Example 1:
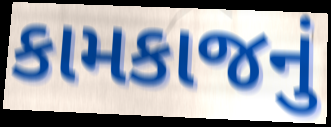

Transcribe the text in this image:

કામકાજનું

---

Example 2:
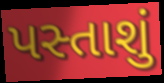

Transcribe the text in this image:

પસ્તાશું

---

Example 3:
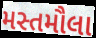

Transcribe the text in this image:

મસ્તમૌલા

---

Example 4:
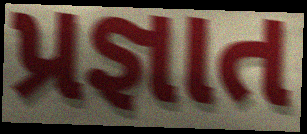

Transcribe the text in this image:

પ્રજ્ઞાત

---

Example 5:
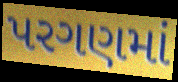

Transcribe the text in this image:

પરગણમાં